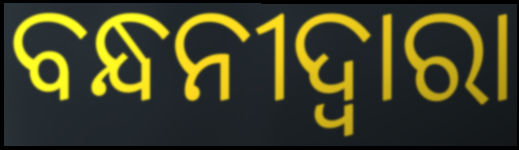
ବନ୍ଧନୀଦ୍ୱାରା